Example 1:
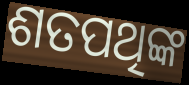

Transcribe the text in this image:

ଶତପଥିଙ୍କ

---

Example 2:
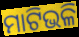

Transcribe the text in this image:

ମାଟିଭଳି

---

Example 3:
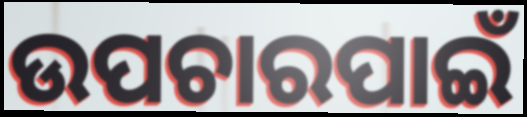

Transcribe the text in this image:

ଉପଚାରପାଇଁ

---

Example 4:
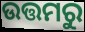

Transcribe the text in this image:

ଉତ୍ତମରୁ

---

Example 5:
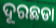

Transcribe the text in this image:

ଦୂରଛଡା